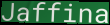
Jaffina